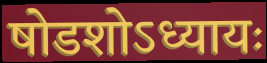
षोडशोऽध्यायः